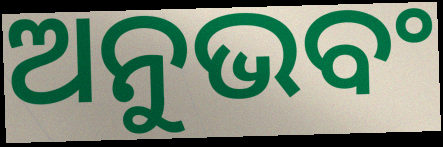
ଅନୁଭବଂ